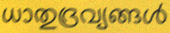
ധാതുദ്രവ്യങ്ങൾ